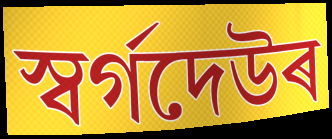
স্বৰ্গদেউৰ